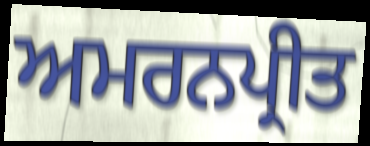
ਅਮਰਨਪ੍ਰੀਤ